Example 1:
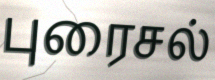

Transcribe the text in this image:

புரைசல்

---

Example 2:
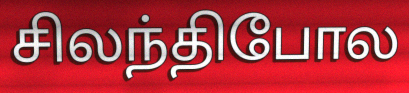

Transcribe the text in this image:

சிலந்திபோல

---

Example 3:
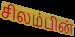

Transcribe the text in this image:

சிலம்பின்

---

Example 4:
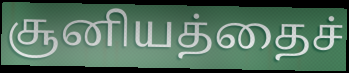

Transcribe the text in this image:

சூனியத்தைச்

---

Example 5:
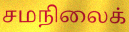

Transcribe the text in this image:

சமநிலைக்